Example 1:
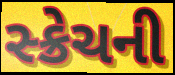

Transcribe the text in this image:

સ્ક્રેચની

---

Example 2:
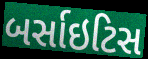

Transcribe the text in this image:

બર્સાઇટિસ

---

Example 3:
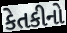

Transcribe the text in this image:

કેતકીનો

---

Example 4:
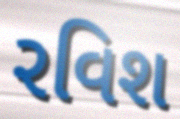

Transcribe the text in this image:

રવિશ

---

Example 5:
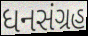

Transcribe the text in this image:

ધનસંગ્રહ